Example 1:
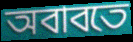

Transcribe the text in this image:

অবাবতে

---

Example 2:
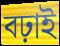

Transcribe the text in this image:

বঢ়াই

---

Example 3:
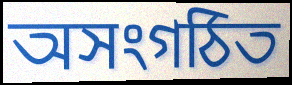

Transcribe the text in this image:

অসংগঠিত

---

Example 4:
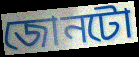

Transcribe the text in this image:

জোনটো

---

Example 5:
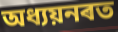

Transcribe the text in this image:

অধ্যয়নৰত